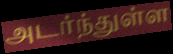
அடர்ந்துள்ள